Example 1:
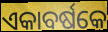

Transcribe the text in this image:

ଏକାବର୍ଷକେ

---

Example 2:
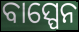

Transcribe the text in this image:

ବାସ୍ପେନ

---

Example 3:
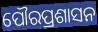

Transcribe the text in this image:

ପୌରପ୍ରଶାସନ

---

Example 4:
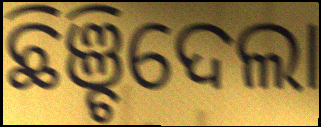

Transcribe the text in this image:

ଛିଞ୍ଚିଦେଲା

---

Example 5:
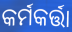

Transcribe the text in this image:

କର୍ମକର୍ତ୍ତା